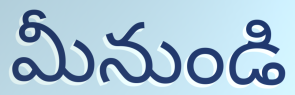
మీనుండి